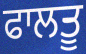
ਫਾਲਤੂ